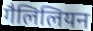
गैलिलियन